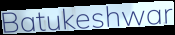
Batukeshwar